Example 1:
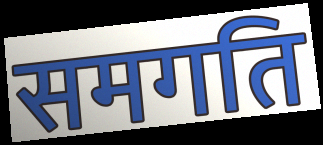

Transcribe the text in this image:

समगति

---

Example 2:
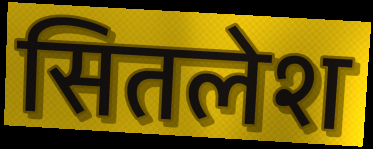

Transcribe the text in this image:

सितलेश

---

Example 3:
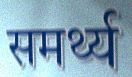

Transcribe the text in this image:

समर्थ्य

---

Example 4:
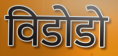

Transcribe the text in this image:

विडोडो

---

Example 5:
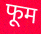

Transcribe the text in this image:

फूम